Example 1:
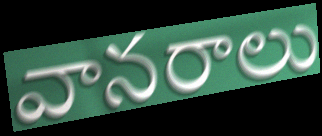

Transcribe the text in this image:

వానరాలు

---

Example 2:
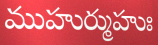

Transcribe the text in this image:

ముహుర్ముహుః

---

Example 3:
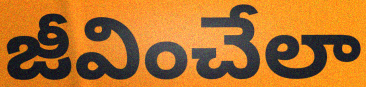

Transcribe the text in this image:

జీవించేలా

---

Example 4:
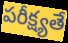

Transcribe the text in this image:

పరీక్ష్యతే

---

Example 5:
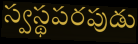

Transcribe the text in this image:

స్వస్థపరపుడు